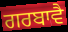
ਗਰਬਾਵੈ